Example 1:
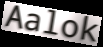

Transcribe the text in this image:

Aalok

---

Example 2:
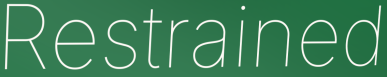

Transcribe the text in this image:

Restrained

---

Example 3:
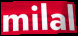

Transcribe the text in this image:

milal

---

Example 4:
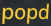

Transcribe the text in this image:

popd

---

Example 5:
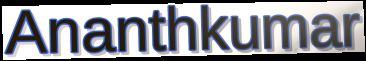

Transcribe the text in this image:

Ananthkumar